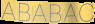
ABABAC